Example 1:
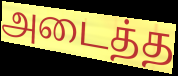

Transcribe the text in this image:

அடைத்த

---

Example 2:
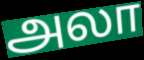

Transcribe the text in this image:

அலா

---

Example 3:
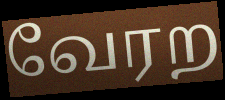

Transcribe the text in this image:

வேரற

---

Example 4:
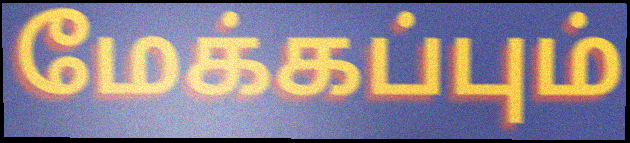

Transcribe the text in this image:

மேக்கப்பும்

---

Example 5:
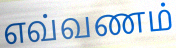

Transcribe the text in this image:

எவ்வணம்